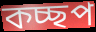
কচ্ছপ